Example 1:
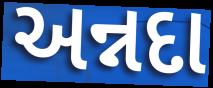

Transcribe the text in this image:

અન્નદા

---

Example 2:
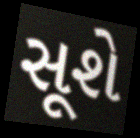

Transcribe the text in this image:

સૂશે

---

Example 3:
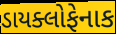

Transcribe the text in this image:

ડાયક્લોફેનાક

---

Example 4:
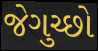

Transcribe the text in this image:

જેગુચ્છો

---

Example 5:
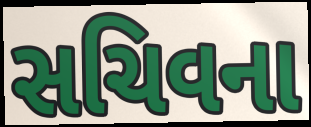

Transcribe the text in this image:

સચિવના